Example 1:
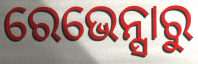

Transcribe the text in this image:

ରେଭେନ୍ସାରୁ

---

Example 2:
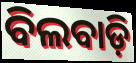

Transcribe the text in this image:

ବିଲବାଡ଼ି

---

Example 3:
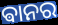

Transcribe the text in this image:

ଵାନର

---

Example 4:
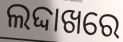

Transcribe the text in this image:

ଲଦ୍ଦାଖରେ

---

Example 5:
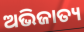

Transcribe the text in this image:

ଅଭିଜାତ୍ୟ